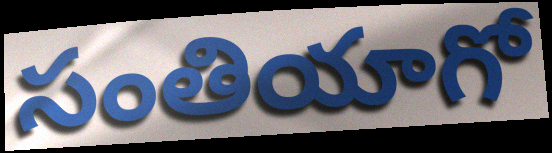
సంతియాగో